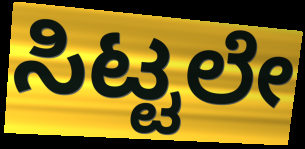
ಸಿಟ್ಟಲೇ